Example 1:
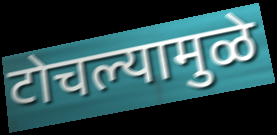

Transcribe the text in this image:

टोचल्यामुळे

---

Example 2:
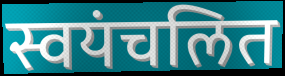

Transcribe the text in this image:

स्वयंचलित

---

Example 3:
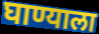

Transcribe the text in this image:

घाण्याला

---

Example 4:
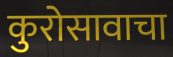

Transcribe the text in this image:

कुरोसावाचा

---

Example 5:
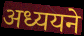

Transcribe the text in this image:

अध्ययने